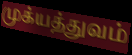
முக்யத்துவம்